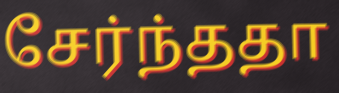
சேர்ந்ததா